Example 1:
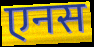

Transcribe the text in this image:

एनस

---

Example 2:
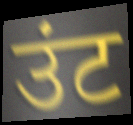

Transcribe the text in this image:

उंट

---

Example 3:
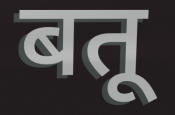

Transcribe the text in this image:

बतू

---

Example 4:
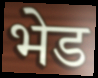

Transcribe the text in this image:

भेड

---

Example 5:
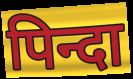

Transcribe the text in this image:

पिन्दा